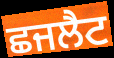
ਛਜਲੈਟ